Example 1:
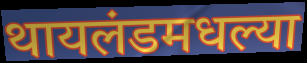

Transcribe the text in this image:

थायलंडमधल्या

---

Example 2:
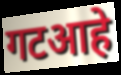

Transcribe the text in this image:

गटआहे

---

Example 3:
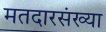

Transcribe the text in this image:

मतदारसंख्या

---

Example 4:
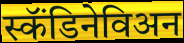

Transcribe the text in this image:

स्कॅंडिनेविअन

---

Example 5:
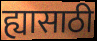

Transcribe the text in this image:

ह्यासाठी